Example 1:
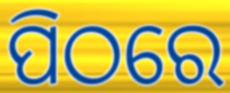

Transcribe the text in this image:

ପିଠରେ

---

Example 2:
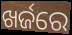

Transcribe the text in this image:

ଖର୍ଜରେ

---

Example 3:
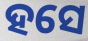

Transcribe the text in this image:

ହସେ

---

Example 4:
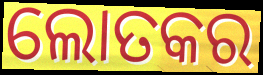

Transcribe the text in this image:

ଲୋତକର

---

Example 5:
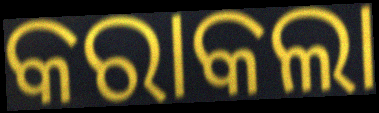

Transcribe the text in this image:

କରାକଲା